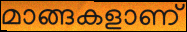
മാങ്ങകളാണ്